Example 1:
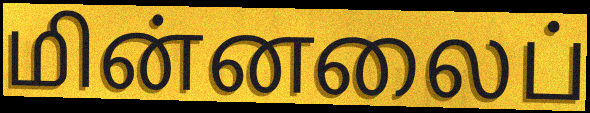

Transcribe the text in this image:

மின்னலைப்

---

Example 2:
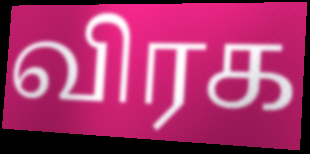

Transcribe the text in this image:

விரக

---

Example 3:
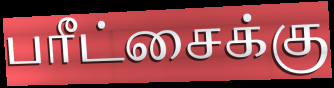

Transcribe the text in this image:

பரீட்சைக்கு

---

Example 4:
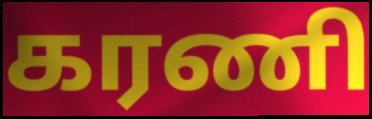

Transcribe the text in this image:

கரணி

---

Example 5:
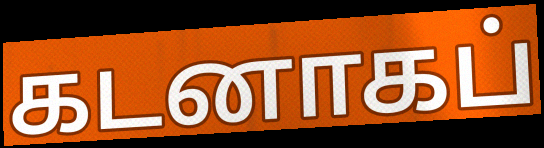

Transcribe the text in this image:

கடனாகப்